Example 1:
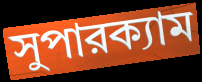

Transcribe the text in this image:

সুপারক্যাম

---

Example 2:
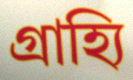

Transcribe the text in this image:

গ্রাহ্যি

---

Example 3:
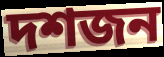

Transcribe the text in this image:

দশজন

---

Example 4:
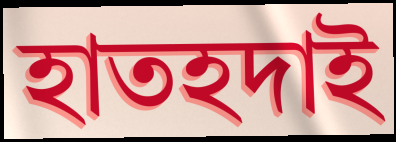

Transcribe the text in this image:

হাতহদাই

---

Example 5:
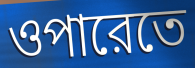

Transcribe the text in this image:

ওপারেতে